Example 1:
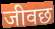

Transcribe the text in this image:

जीवछ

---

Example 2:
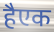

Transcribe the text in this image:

हैएक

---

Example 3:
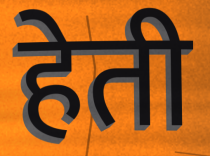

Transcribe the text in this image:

हेती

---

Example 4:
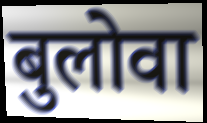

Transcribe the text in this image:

बुलोवा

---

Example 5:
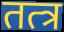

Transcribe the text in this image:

तत्त्र